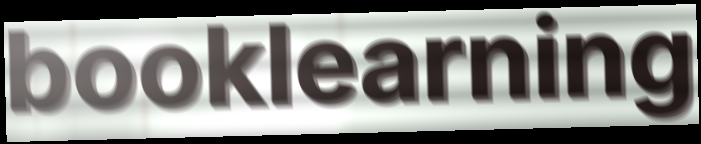
booklearning